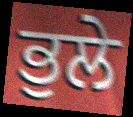
ਭੁਲੇ